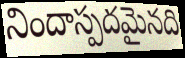
నిందాస్పదమైనది